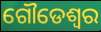
ଗୌଡେଶ୍ୱର